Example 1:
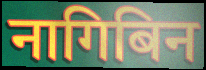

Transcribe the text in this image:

नागिबिन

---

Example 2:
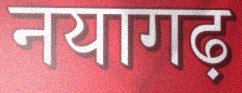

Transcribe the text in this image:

नयागढ़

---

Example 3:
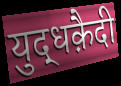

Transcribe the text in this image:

युद्धक़ैदी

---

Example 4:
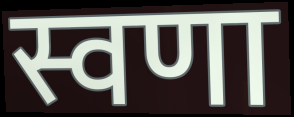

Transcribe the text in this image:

स्वणा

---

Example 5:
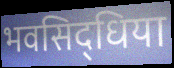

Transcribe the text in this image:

भवसिद्धिया